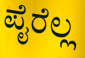
ಪೈರೆಲ್ಲ